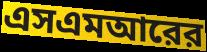
এসএমআরের